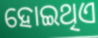
ହୋଇଥିଏ